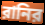
রানির